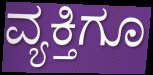
ವ್ಯಕ್ತಿಗೂ